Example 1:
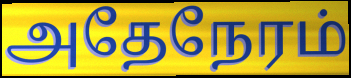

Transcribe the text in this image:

அதேநேரம்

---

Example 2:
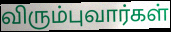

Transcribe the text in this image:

விரும்புவார்கள்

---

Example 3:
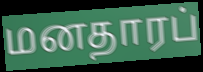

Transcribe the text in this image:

மனதாரப்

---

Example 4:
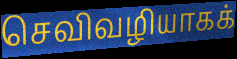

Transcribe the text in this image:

செவிவழியாகக்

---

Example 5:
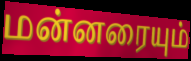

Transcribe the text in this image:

மன்னரையும்